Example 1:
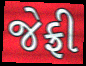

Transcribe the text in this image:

જેફ્રી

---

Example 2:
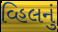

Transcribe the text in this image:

વ્હિલનું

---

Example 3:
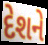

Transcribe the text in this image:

દેશને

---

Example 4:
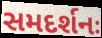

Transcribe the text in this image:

સમદર્શનઃ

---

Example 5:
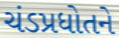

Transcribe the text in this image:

ચંડપ્રધોતને